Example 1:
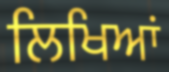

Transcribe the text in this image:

ਲਿਖਿਆਂ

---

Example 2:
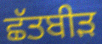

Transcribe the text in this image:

ਛੱਤਬੀੜ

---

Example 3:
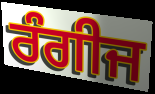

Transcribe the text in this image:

ਰੰਗੀਜ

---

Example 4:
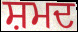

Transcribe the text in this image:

ਸ਼ਮਦ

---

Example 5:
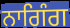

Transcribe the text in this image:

ਨਾਗਿੰਗ